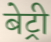
बेट्री